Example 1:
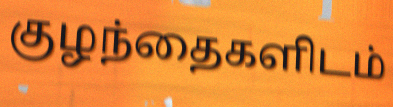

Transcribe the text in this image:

குழந்தைகளிடம்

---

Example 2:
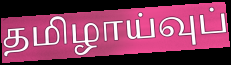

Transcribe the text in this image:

தமிழாய்வுப்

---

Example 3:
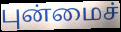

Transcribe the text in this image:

புன்மைச்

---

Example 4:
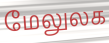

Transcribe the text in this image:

மேலுலக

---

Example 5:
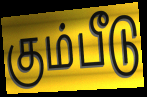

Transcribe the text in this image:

கும்பீடு